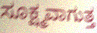
ಸೂಕ್ಷ್ಮವಾಗುತ್ತ